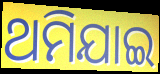
ଥମିଯାଇ